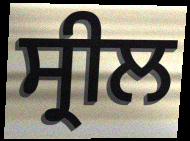
ਸ੍ਰੀਲ